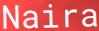
Naira